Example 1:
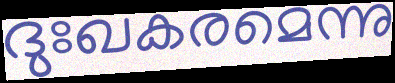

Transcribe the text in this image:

ദുഃഖകരമെന്നു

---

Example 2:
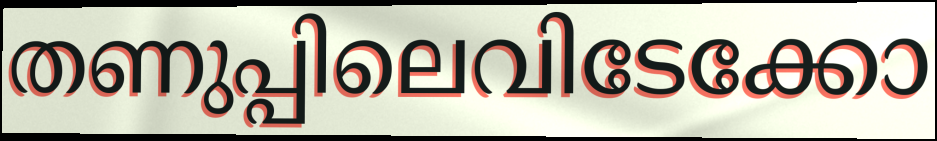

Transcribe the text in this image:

തണുപ്പിലെവിടേക്കോ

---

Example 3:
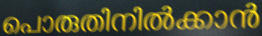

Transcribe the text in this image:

പൊരുതിനിൽക്കാൻ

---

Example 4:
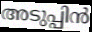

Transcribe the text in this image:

അടുപ്പിൻ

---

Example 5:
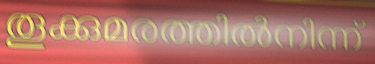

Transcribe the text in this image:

തൂക്കുമരത്തിൽനിന്ന്